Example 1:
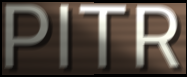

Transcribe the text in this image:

PITR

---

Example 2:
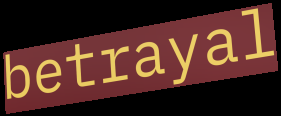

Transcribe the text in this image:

betrayal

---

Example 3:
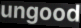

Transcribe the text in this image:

ungood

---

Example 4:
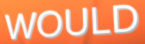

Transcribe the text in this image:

WOULD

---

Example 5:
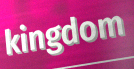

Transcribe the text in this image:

kingdom